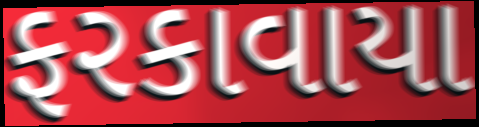
ફરકાવાયા